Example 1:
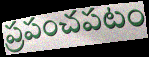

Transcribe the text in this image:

ప్రపంచపటం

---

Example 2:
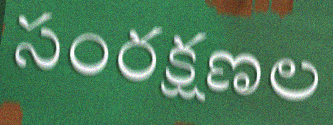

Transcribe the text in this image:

సంరక్షణల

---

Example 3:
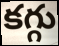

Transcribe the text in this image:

కగ్గు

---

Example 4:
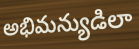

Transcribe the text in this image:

అభిమన్యుడిలా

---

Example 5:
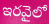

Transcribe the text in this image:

ఇరవైలో